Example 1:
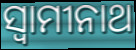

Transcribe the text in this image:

ସ୍ୱାମୀନାଥ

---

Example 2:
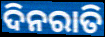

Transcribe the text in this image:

ଦିନରାତି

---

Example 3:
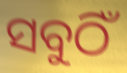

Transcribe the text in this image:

ସବୁଠିଁ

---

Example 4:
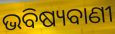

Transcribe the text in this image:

ଭବିଷ୍ୟବାଣୀ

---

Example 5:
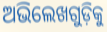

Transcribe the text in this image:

ଅଭିଲେଖଗୁଡ଼ିକୁ